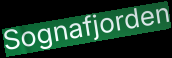
Sognafjorden